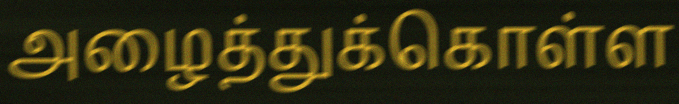
அழைத்துக்கொள்ள